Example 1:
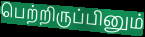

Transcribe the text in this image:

பெற்றிருப்பினும்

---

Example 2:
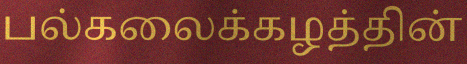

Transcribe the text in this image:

பல்கலைக்கழத்தின்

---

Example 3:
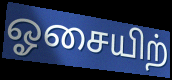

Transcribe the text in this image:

ஓசையிற்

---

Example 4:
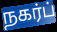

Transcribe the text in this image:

நகர்ப்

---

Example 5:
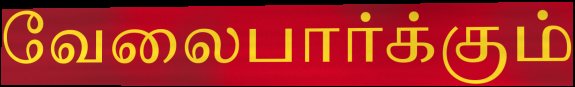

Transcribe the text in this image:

வேலைபார்க்கும்